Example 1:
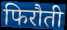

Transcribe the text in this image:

फिरौती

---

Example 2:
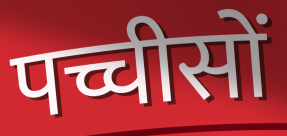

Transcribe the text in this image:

पच्चीसों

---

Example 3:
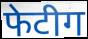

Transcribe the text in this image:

फेटीग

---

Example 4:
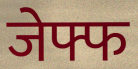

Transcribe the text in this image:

जेफ्फ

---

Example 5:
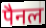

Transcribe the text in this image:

पैनल